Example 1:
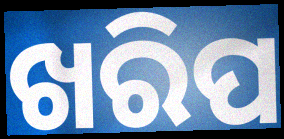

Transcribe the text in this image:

ଖରିପ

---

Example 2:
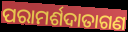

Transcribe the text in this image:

ପରାମର୍ଶଦାତାଗଣ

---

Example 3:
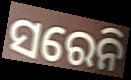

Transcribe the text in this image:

ସରେନି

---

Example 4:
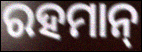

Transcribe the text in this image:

ରହମାନ୍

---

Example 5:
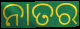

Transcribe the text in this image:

ନାତର